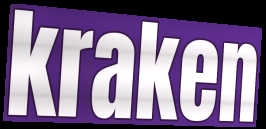
kraken